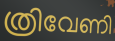
ത്രിവേണി